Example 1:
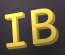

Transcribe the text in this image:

IB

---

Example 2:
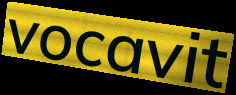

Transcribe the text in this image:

vocavit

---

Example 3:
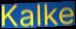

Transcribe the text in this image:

Kalke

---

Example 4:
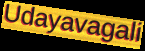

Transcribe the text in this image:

Udayavagali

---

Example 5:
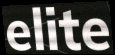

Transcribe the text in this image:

elite